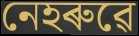
নেহৰুৱে